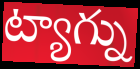
ట్యాగ్ను